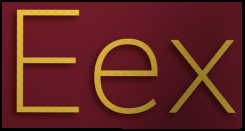
Eex